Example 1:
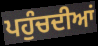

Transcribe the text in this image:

ਪਹੁੰਚਦੀਆਂ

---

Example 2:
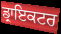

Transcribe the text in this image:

ਡ੍ਰਾਇਕਟਰ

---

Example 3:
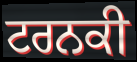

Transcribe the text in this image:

ਟਰਨਕੀ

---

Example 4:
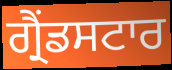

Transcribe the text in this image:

ਗ੍ਰੈਂਡਸਟਾਰ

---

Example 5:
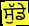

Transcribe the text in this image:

ਸੁੱਡੇ